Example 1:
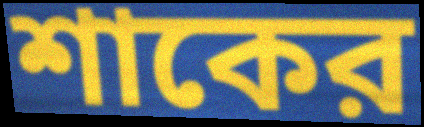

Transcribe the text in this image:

শাকের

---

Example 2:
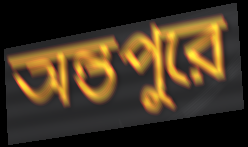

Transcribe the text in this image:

অন্তপুরে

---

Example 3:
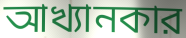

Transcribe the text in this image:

আখ্যানকার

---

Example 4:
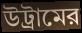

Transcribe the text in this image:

উট্রামের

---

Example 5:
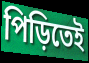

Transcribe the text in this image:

পিড়িতেই